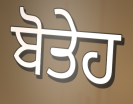
ਬੋਤੇਹ